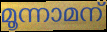
മൂന്നാമന്